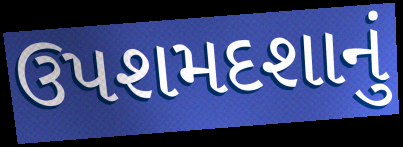
ઉપશમદશાનું